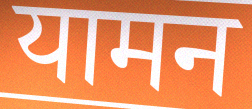
यामन